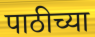
पाठीच्या